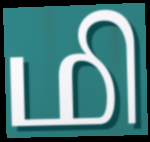
மி